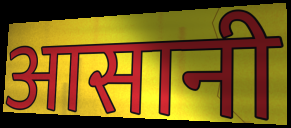
आसानी